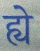
ह्ये